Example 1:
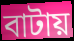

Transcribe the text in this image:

বাটায়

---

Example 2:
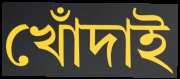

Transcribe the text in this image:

খোঁদাই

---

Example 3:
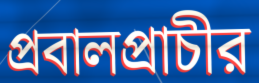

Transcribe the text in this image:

প্রবালপ্রাচীর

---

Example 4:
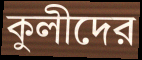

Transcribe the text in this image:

কুলীদের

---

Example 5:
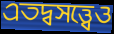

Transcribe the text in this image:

এতদ্বসত্ত্বেও